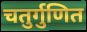
चतुर्गुणित